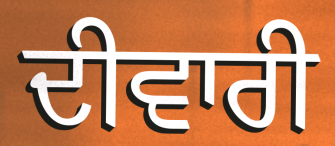
ਦੀਵਾਰੀ